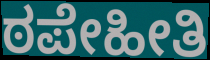
ಠಪೇಹೀತಿ